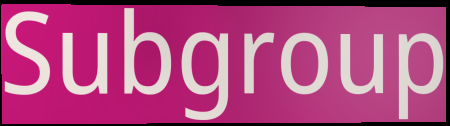
Subgroup